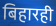
बिहारही